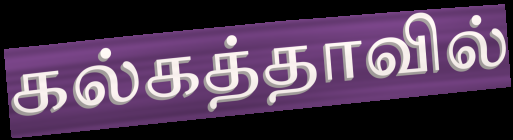
கல்கத்தாவில்